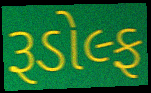
રૂડોલ્ફ